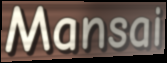
Mansai